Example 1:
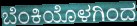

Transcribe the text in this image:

ಬೆಂಕಿಯೊಳಗಿಂದ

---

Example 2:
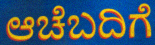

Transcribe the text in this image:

ಆಚೆಬದಿಗೆ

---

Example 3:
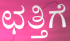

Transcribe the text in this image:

ಛತ್ತಿಗೆ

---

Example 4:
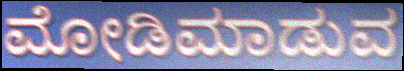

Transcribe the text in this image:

ಮೋಡಿಮಾಡುವ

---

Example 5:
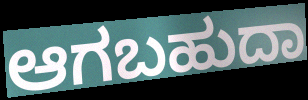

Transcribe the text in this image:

ಆಗಬಹುದಾ